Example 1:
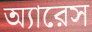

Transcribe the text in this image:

অ্যারেস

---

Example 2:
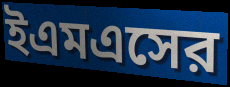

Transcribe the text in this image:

ইএমএসের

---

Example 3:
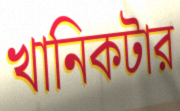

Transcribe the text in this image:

খানিকটার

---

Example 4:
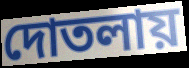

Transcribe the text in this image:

দোতলায়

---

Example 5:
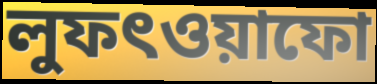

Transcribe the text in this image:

লুফৎওয়াফো